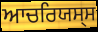
ਆਚਰਿਯਸ੍ਸ